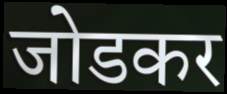
जोडकर